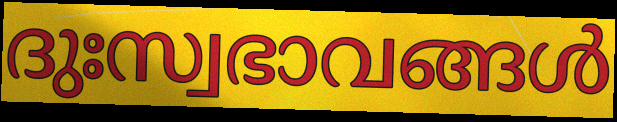
ദുഃസ്വഭാവങ്ങൾ